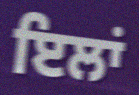
ਇਲਾਂ